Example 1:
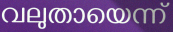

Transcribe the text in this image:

വലുതായെന്ന്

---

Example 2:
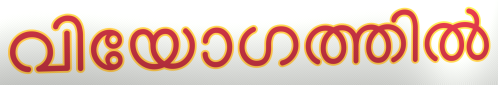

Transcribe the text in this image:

വിയോഗത്തിൽ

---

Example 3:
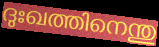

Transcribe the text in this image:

ദുഃഖത്തിനെന്തു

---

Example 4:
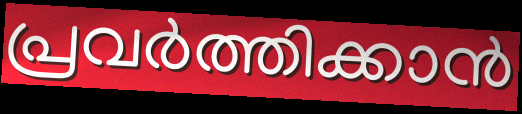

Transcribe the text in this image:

പ്രവർത്തിക്കാൻ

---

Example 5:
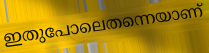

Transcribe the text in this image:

ഇതുപോലെതന്നെയാണ്